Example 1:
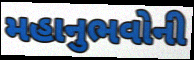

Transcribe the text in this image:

મહાનુભવોની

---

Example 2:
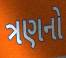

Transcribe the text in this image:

ત્રણનો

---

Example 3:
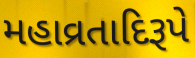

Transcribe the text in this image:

મહાવ્રતાદિરૂપે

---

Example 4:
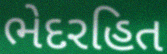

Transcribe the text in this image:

ભેદરહિત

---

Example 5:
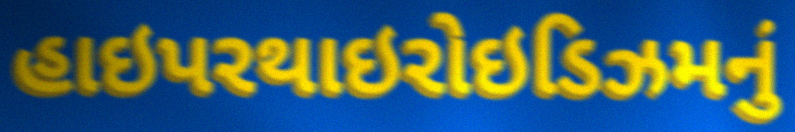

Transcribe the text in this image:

હાઇપરથાઇરોઇડિઝમનું